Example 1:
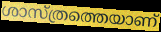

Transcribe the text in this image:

ശാസ്ത്രത്തെയാണ്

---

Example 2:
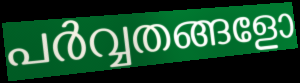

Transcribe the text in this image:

പർവ്വതങ്ങളോ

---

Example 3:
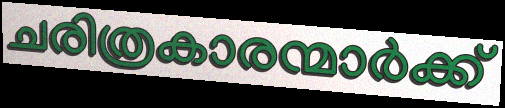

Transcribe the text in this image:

ചരിത്രകാരന്മാർക്ക്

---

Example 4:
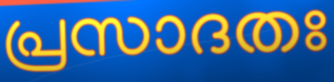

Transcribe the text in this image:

പ്രസാദതഃ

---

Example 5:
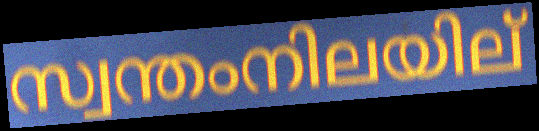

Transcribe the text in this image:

സ്വന്തംനിലയില്